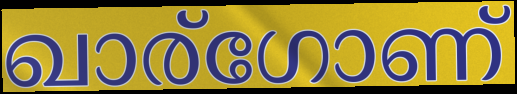
ഖാര്ഗോണ്